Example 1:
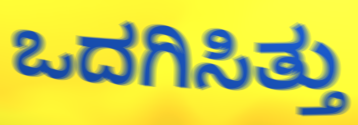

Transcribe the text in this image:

ಒದಗಿಸಿತ್ತು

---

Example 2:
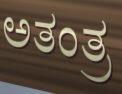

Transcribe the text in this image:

ಅತಂತ್ರ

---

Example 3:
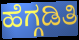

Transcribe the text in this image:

ಹೆಗ್ಗಡಿತಿ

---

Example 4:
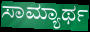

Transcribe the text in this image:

ಸಾಮ್ಯಾರ್ಥ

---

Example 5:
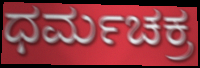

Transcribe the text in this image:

ಧರ್ಮಚಕ್ರ